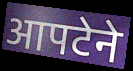
आपटेने